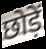
छोड़ें